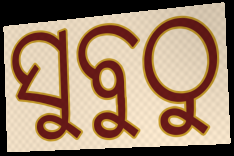
ସୁବୁଠୁ